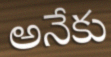
అనేకు